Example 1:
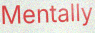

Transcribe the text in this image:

Mentally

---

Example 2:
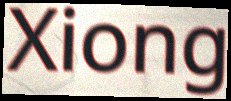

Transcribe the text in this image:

Xiong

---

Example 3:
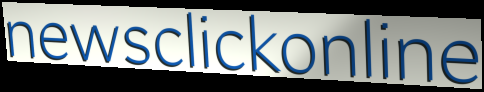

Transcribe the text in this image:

newsclickonline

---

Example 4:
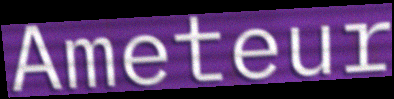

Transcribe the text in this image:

Ameteur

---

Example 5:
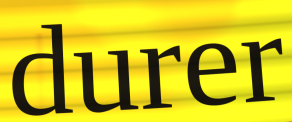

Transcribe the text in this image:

durer